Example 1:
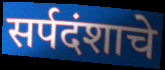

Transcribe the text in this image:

सर्पदंशाचे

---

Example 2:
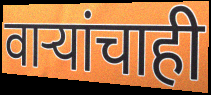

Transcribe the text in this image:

वाऱ्यांचाही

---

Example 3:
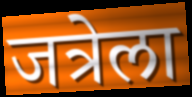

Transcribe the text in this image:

जत्रेला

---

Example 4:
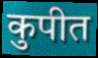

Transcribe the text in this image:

कुपीत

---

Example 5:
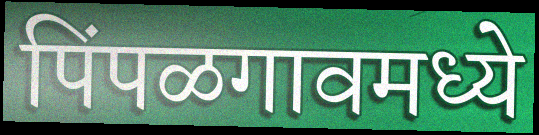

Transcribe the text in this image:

पिंपळगावमध्ये